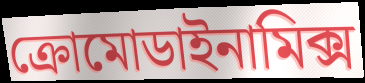
ক্রোমোডাইনামিক্স